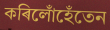
কৰিলোঁহেঁতেন